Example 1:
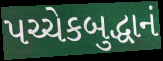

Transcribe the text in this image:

પચ્ચેકબુદ્ધાનં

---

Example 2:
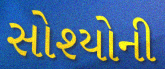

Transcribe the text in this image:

સોશ્યોની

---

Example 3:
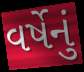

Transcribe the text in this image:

વર્ષેનું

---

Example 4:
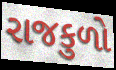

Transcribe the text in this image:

રાજકુળો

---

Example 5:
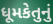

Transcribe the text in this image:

ધૂમકેતુનું